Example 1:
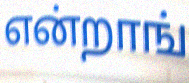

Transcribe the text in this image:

என்றாங்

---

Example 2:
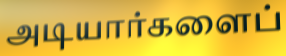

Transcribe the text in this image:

அடியார்களைப்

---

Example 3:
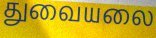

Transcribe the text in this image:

துவையலை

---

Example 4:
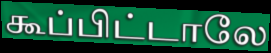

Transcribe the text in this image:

கூப்பிட்டாலே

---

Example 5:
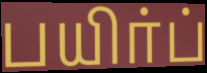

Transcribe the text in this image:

பயிர்ப்